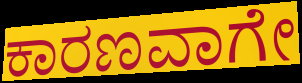
ಕಾರಣವಾಗೇ